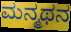
ಮನ್ಮಥನ